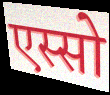
एस्सो